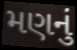
મણનું